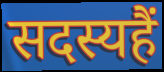
सदस्यहैं